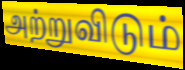
அற்றுவிடும்